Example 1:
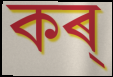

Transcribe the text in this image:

কৰ্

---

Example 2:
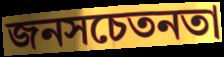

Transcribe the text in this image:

জনসচেতনতা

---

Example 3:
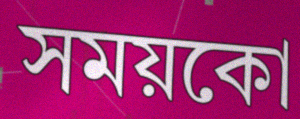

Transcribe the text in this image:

সময়কো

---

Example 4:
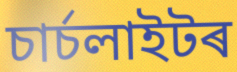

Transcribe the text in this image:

চাৰ্চলাইটৰ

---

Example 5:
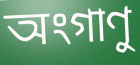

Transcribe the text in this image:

অংগাণু